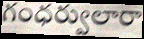
గంధర్వులారా